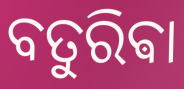
ବତୁରିଵା